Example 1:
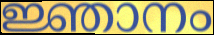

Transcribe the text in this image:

ജ്ഞാനം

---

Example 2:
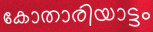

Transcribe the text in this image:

കോതാരിയാട്ടം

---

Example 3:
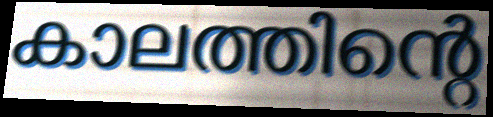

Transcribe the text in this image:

കാലത്തിന്റെ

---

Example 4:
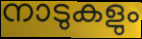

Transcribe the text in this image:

നാടുകളും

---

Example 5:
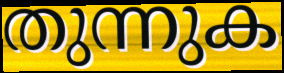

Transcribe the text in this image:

തുന്നുക